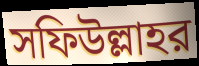
সফিউল্লাহর